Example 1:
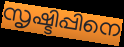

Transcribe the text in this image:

സൃഷ്ടിപ്പിനെ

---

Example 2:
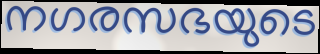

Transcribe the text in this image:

നഗരസഭയുടെ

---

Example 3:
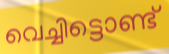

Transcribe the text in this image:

വെച്ചിട്ടൊണ്ട്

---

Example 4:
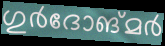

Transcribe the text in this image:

ഗുർദോങ്മർ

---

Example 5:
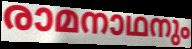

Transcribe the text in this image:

രാമനാഥനും